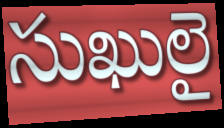
సుఖులై